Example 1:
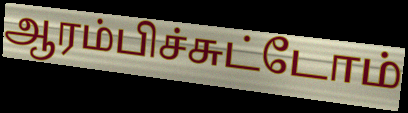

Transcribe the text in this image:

ஆரம்பிச்சுட்டோம்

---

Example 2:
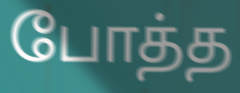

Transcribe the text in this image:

போத்த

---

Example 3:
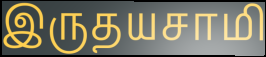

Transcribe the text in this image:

இருதயசாமி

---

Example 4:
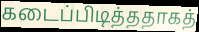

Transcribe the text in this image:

கடைப்பிடித்ததாகத்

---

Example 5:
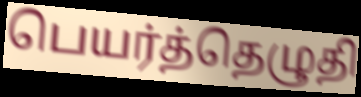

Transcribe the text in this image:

பெயர்த்தெழுதி